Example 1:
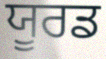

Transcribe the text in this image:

ਯੂਰਡ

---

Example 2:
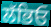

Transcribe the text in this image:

ਲੱਭਿਓ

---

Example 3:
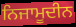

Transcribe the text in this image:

ਨਿਜਾਮੂਦੀਨ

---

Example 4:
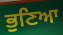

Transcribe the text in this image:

ਭੁਣਿਆ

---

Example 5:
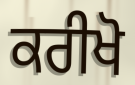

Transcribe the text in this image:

ਕਰੀਖੋ